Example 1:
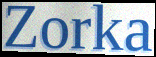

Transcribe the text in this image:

Zorka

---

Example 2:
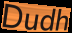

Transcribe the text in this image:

Dudh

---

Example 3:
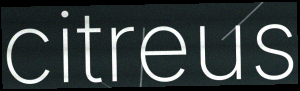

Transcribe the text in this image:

citreus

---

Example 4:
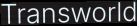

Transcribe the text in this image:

Transworld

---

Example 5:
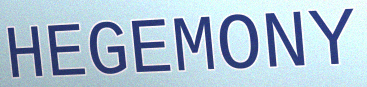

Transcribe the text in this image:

HEGEMONY